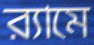
র‍্যামে